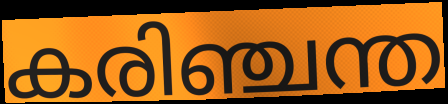
കരിഞ്ചന്ത